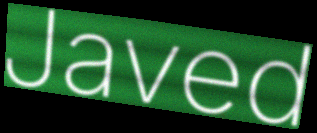
Javed